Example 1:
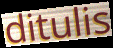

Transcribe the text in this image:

ditulis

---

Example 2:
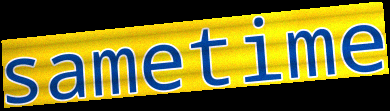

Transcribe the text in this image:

sametime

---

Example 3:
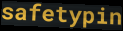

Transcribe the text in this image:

safetypin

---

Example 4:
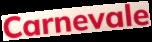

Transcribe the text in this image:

Carnevale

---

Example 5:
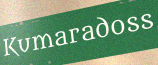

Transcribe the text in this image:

Kumaradoss